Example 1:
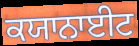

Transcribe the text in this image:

ਕਯਾਨਾਈਟ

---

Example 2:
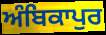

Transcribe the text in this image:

ਅੰਬਿਕਾਪੁਰ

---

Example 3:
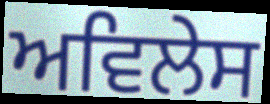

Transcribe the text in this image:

ਅਵਿਲੇਸ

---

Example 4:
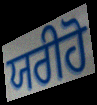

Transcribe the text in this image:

ਯਰੀਹੋ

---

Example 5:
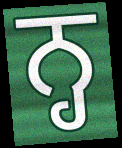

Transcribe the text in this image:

ਨ੍ਹ